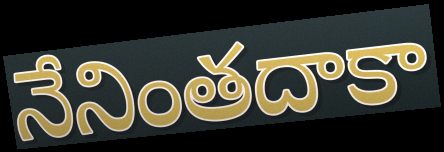
నేనింతదాకా